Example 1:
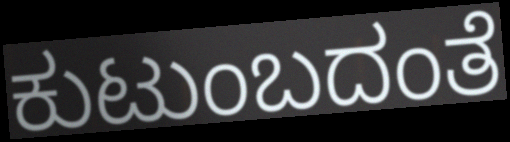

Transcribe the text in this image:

ಕುಟುಂಬದಂತೆ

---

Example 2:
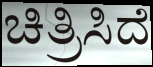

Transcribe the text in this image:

ಚಿತ್ರಿಸಿದೆ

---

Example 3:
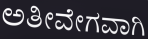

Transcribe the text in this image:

ಅತೀವೇಗವಾಗಿ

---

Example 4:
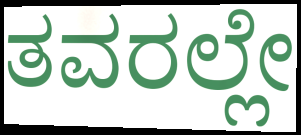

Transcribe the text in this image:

ತವರಲ್ಲೇ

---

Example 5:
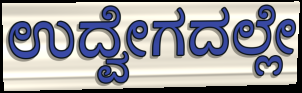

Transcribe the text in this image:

ಉದ್ವೇಗದಲ್ಲೇ